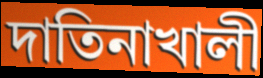
দাতিনাখালী